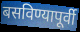
बसविण्यापूर्वी